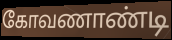
கோவணாண்டி